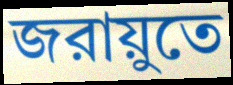
জরায়ুতে